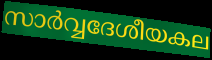
സാർവ്വദേശീയകല